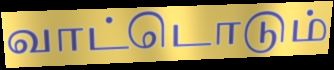
வாட்டொடும்